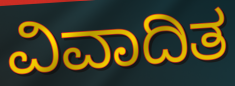
ವಿವಾದಿತ